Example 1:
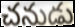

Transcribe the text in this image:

చనుడు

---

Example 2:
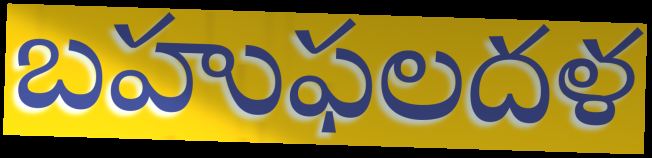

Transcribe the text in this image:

బహుఫలదళ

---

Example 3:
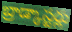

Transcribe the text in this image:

బ్రాడ్కాస్టర్లు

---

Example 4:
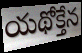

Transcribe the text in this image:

యథోక్తేన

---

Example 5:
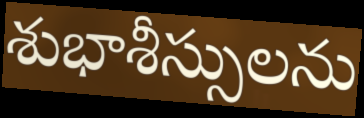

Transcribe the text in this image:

శుభాశీస్సులను